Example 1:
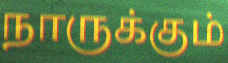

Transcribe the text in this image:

நாருக்கும்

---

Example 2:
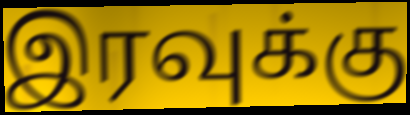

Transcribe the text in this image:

இரவுக்கு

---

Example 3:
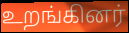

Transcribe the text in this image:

உறங்கினர்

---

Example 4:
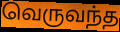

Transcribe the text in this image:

வெருவந்த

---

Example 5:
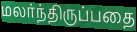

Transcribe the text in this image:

மலர்ந்திருப்பதை